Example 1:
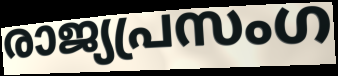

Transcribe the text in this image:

രാജ്യപ്രസംഗ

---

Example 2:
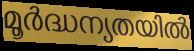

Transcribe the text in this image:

മൂർദ്ധന്യതയിൽ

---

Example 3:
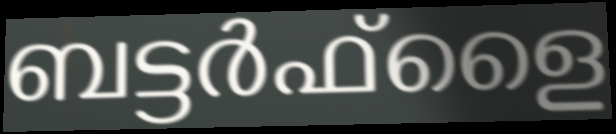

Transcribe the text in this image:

ബട്ടർഫ്ളൈ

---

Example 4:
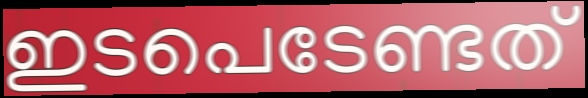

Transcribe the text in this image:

ഇടപെടേണ്ടത്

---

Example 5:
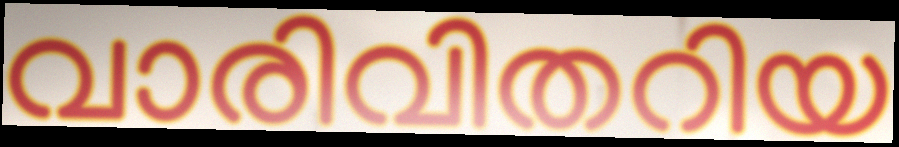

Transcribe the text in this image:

വാരിവിതറിയ